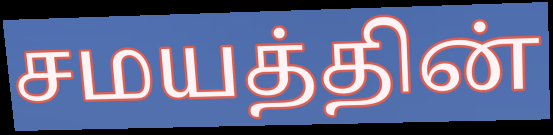
சமயத்தின்